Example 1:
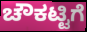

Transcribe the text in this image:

ಚೌಕಟ್ಟಿಗೆ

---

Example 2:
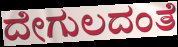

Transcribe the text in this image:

ದೇಗುಲದಂತೆ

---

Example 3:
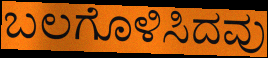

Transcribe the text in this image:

ಬಲಗೊಳಿಸಿದವು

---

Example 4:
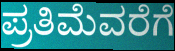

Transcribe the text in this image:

ಪ್ರತಿಮೆವರೆಗೆ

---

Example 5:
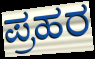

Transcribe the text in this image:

ಪ್ರಹರ